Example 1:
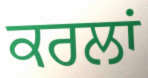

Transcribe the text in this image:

ਕਰਲਾਂ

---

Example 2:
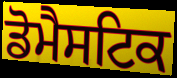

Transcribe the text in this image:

ਡੋਮੈਸਟਿਕ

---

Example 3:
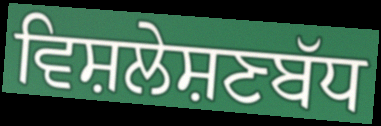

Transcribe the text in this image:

ਵਿਸ਼ਲੇਸ਼ਣਬੱਧ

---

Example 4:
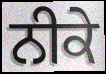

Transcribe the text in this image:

ਨੀਕੇ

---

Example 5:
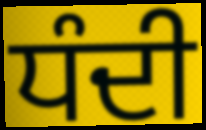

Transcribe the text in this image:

ਧੰਦੀ